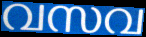
വസവ